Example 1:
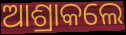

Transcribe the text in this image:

ଆଶ୍ରାକଲେ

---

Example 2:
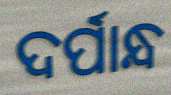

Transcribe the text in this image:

ଦର୍ପାନ୍ଧ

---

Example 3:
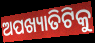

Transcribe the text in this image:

ଅପଖ୍ୟାତିଟିକୁ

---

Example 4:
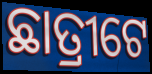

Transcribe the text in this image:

ଛାତ୍ରୀଟେ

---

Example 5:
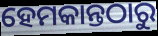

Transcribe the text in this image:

ହେମକାନ୍ତଠାରୁ